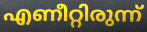
എണീറ്റിരുന്ന്